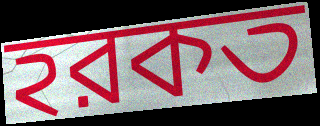
হরকত